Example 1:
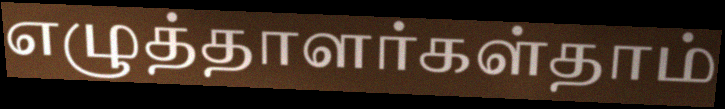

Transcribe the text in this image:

எழுத்தாளர்கள்தாம்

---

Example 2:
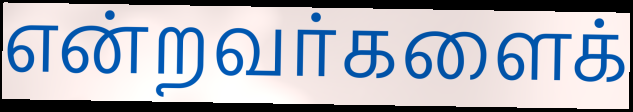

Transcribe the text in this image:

என்றவர்களைக்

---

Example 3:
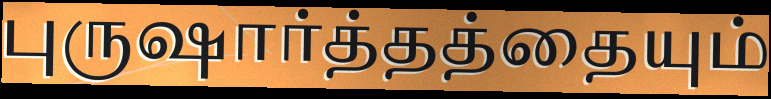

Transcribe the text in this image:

புருஷார்த்தத்தையும்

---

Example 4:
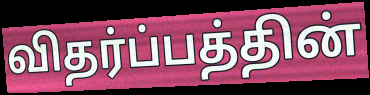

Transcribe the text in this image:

விதர்ப்பத்தின்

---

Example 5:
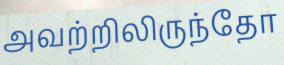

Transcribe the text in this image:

அவற்றிலிருந்தோ